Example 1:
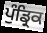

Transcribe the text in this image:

ਪੁੰਡ੍ਰਿਕ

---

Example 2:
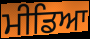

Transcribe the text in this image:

ਮੀਡਿਆ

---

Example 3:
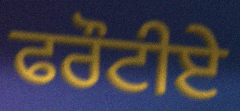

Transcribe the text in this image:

ਫਰੌਟੀਏ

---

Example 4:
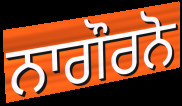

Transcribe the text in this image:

ਨਾਗੌਰਨੋ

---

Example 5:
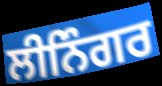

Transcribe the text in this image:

ਲੀਨਿੰਗਰ